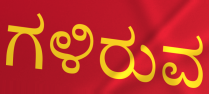
ಗಳಿರುವ